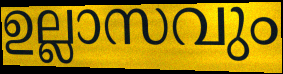
ഉല്ലാസവും